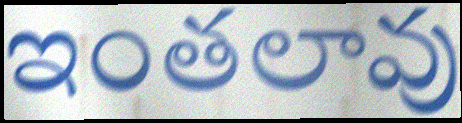
ఇంతలావు